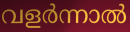
വളർന്നാൽ